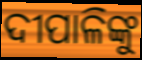
ଦୀପାଳିଙ୍କୁ